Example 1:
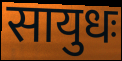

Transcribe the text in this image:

सायुधः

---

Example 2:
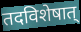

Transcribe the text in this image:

तदविशेषात्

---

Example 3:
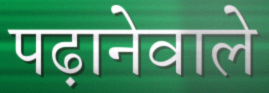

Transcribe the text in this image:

पढ़ानेवाले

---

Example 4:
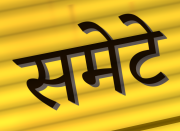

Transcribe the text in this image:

समेटे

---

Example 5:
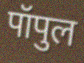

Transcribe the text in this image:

पॉपुल